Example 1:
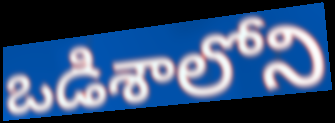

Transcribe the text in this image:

ఒడిశాలోని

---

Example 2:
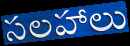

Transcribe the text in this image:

సలహాలు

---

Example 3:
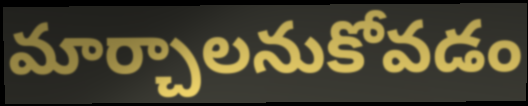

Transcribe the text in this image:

మార్చాలనుకోవడం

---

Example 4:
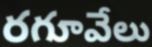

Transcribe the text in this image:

రగూవేలు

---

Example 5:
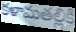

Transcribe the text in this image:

కళామతల్లికి